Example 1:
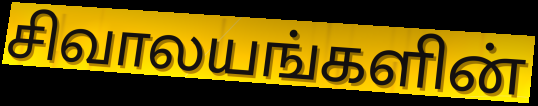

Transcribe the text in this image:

சிவாலயங்களின்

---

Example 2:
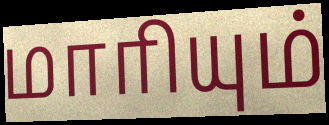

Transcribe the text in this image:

மாரியும்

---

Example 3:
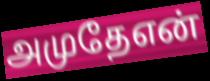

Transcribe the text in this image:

அமுதேஎன்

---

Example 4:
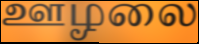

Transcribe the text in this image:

ஊழலை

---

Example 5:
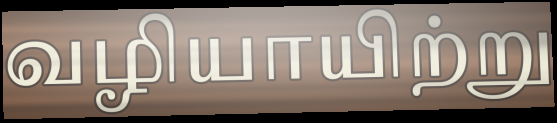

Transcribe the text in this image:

வழியாயிற்று